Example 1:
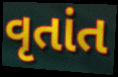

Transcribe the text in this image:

વૃતાંત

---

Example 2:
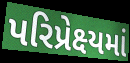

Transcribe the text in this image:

પરિપ્રેક્ષ્યમાં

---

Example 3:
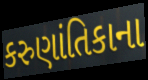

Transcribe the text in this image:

કરુણાંતિકાના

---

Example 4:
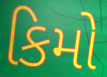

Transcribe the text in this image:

કિમો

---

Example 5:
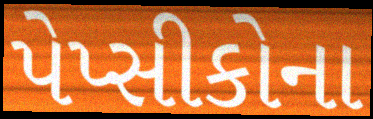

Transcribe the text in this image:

પેપ્સીકોના